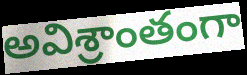
అవిశ్రాంతంగా